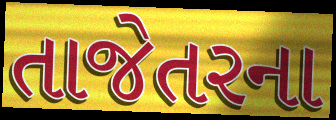
તાજેતરના